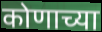
कोणाच्या